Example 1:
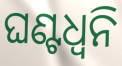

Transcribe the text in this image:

ଘଣ୍ଟଧ୍ୱନି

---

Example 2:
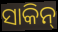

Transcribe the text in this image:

ସାକିନ୍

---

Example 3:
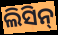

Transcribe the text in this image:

ଲିସିନ୍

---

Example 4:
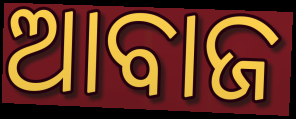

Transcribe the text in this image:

ଆବାଜ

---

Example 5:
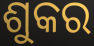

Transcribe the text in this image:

ଶୁକର